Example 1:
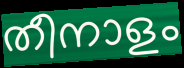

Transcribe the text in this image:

തീനാളം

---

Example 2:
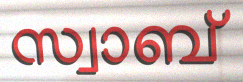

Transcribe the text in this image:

സ്വാബ്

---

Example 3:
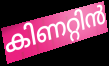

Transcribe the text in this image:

കിണറ്റിൻ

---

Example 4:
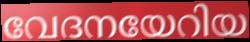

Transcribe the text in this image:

വേദനയേറിയ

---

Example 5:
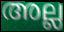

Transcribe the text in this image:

അല്ല